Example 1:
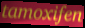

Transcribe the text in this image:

tamoxifen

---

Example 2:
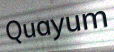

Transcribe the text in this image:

Quayum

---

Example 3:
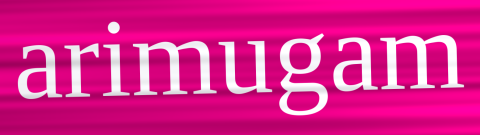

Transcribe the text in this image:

arimugam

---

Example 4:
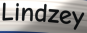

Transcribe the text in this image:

Lindzey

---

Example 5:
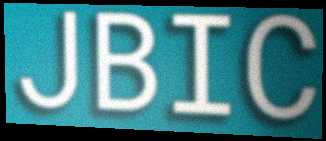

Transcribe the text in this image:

JBIC